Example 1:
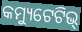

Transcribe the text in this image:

କମ୍ୟୁଟେଟିଭ୍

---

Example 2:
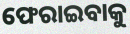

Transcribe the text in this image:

ଫେରାଇବାକୁ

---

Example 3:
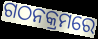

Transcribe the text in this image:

ଗଠନକ୍ରମରେ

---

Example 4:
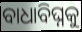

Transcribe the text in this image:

ବାଧାବିଘ୍ନକୁ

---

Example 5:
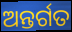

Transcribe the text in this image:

ଅନ୍ତର୍ଗତ